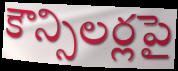
కౌన్సిలర్లపై